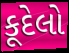
કૂદેલો